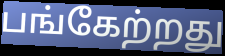
பங்கேற்றது